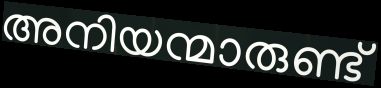
അനിയന്മാരുണ്ട്